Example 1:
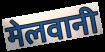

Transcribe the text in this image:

मेलवानी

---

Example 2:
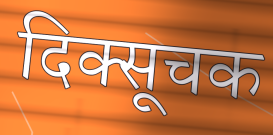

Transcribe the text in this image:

दिक्सूचक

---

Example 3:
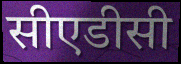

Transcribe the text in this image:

सीएडीसी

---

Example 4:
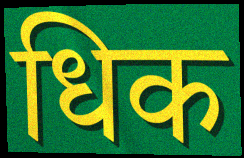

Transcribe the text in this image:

धिक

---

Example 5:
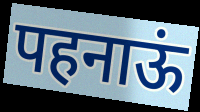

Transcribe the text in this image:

पहनाऊं